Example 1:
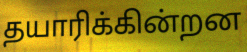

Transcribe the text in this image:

தயாரிக்கின்றன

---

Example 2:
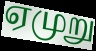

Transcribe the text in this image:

ஏமுறு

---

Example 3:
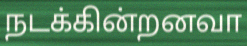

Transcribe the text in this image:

நடக்கின்றனவா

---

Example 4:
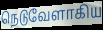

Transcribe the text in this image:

நெடுவேளாகிய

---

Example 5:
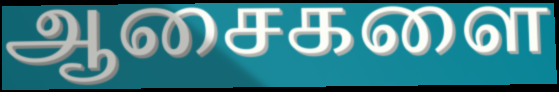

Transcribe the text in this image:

ஆசைகளை